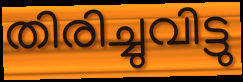
തിരിച്ചുവിട്ടു